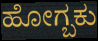
ಹೋಗ್ಬಕು